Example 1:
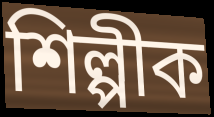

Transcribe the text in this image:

শিল্পীক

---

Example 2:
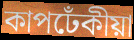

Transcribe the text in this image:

কাপঢেঁকীয়া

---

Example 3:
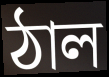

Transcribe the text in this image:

ঠাল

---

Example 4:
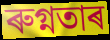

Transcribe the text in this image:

ৰুগ্নতাৰ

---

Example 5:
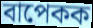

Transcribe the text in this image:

বাপেকক